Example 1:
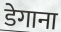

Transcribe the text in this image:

डेगाना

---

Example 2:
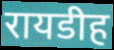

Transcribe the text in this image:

रायडीह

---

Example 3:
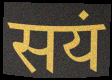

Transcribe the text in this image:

सयं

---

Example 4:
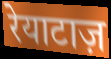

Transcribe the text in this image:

रेयाटाज़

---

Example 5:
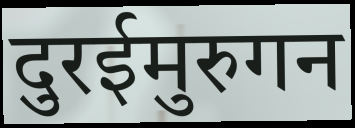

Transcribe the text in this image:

दुरईमुरुगन